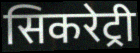
सिकरेट्री